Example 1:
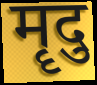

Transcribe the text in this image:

मॄदु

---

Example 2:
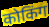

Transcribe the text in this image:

कोकिंग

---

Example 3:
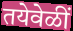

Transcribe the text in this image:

तयेवेळीं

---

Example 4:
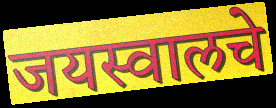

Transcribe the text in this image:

जयस्वालचे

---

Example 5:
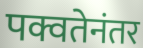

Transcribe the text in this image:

पक्वतेनंतर